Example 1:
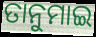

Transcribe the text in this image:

ତାନୁମାଇ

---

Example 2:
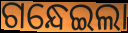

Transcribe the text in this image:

ଗନ୍ଧେଇଲା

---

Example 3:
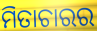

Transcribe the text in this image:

ମିତାଚାରର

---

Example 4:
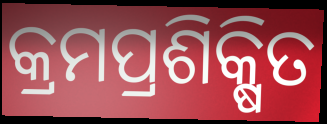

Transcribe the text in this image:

କ୍ରମପ୍ରଶିକ୍ଷିତ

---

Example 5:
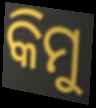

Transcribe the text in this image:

କିମୁ